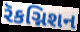
રૅકગ્નિશન